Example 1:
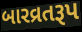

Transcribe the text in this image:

બારવ્રતરૂપ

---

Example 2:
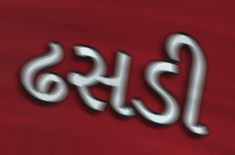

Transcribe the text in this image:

ઢસડી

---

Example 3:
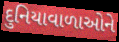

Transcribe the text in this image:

દુનિયાવાળાઓને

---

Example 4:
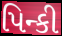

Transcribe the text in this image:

પિન્કી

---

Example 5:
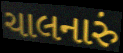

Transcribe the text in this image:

ચાલનારું